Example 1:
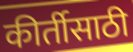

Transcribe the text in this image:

कीर्तीसाठी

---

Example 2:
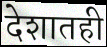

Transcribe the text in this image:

देशातही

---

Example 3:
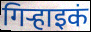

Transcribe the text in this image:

गिऱ्हाइकं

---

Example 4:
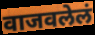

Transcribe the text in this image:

वाजवलेलं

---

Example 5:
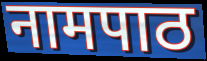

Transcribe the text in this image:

नामपाठ